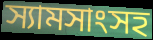
স্যামসাংসহ